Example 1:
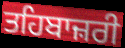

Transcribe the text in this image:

ਤਹਿਬਾਜ਼ਰੀ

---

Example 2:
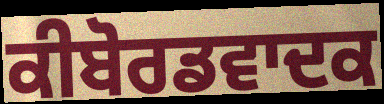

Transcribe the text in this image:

ਕੀਬੋਰਡਵਾਦਕ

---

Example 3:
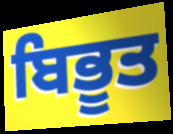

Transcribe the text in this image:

ਬਿਭੂਤ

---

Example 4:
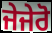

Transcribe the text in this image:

ਜੇਜੇਰੋ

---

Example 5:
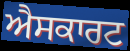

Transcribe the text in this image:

ਐਸਕਾਰਟ